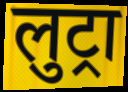
लुट्रा